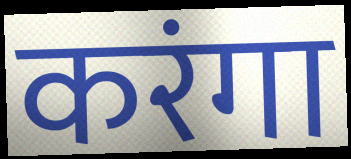
करंगा